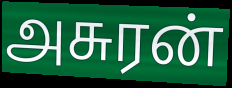
அசுரன்